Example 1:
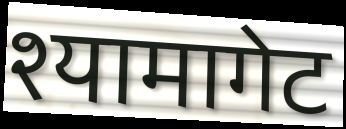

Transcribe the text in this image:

श्यामागेट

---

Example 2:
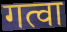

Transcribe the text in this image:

गत्वा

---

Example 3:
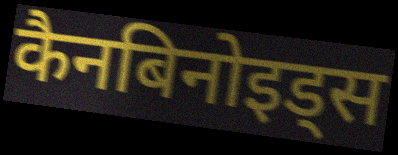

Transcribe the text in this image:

कैनबिनोइड्स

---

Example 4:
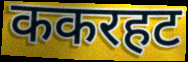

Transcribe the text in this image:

ककरहट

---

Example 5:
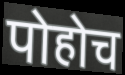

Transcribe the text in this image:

पोहोच